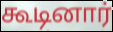
கூடினார்